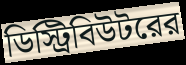
ডিস্ট্রিবিউটরের